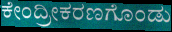
ಕೇಂದ್ರೀಕರಣಗೊಂಡು